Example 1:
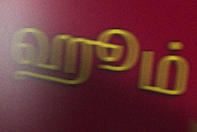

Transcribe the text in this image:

ஹூம்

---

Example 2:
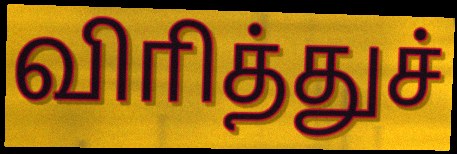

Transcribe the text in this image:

விரித்துச்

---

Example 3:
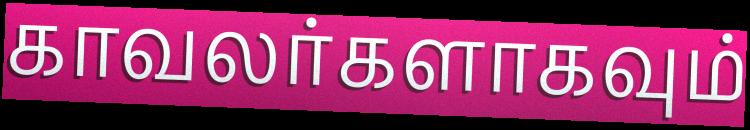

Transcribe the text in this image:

காவலர்களாகவும்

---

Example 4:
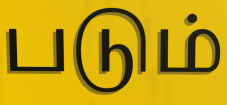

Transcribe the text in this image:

படும்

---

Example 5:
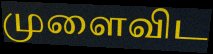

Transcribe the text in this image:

முளைவிட